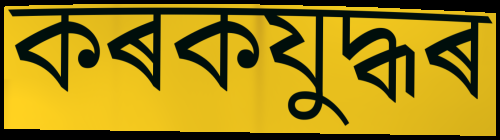
কৰকযুদ্ধৰ